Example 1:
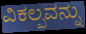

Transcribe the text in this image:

ವಿಕಲ್ಪವನ್ನು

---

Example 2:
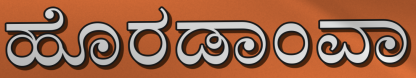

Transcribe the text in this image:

ಹೊರಡಾಂವಾ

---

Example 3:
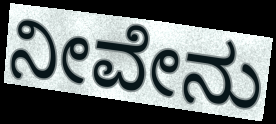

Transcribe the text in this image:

ನೀವೇನು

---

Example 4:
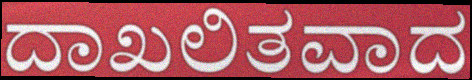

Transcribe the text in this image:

ದಾಖಲಿತವಾದ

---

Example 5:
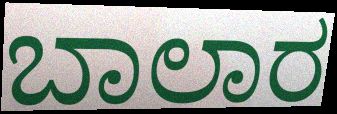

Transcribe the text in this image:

ಬಾಲಾರ